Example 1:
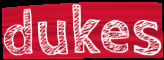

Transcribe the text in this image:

dukes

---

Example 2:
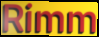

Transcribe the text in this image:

Rimm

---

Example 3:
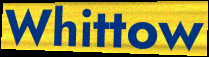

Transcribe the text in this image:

Whittow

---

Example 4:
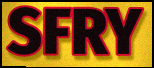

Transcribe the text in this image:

SFRY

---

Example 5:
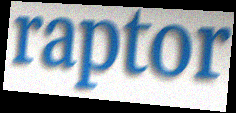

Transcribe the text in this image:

raptor